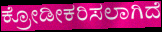
ಕ್ರೋಡೀಕರಿಸಲಾಗಿದೆ